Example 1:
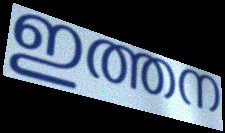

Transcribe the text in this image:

ഇത്തന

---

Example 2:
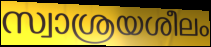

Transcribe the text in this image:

സ്വാശ്രയശീലം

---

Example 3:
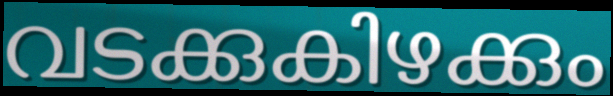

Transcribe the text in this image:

വടക്കുകിഴക്കും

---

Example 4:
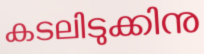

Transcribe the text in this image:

കടലിടുക്കിനു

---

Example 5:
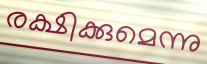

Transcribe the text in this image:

രക്ഷിക്കുമെന്നു